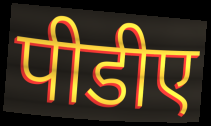
पीडीए